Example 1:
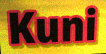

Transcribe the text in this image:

Kuni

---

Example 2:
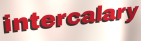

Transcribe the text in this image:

intercalary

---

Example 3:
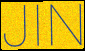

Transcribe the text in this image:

JIN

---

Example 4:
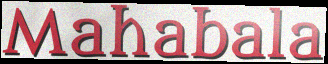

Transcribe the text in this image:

Mahabala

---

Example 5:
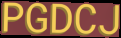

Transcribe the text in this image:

PGDCJ